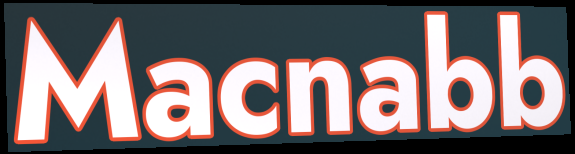
Macnabb